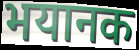
भयानक